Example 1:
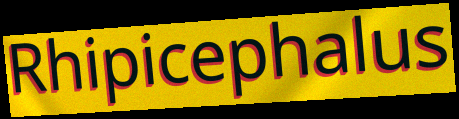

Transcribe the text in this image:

Rhipicephalus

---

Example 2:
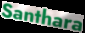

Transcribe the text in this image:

Santhara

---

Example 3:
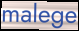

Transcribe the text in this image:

malege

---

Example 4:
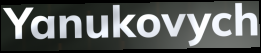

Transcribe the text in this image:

Yanukovych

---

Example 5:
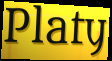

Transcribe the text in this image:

Platy